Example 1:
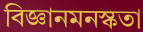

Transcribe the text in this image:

বিজ্ঞানমনস্কতা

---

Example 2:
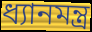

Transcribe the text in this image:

ধ্যানমন্ত্র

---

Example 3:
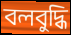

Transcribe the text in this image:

বলবুদ্ধি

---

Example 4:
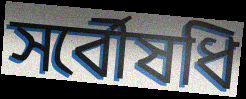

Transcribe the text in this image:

সর্বৌষধি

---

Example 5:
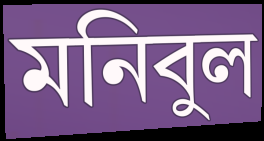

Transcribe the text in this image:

মনিবুল